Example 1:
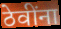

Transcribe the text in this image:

ठेवींना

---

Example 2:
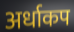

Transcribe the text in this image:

अर्धाकप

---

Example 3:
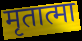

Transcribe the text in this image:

मृतात्मा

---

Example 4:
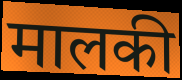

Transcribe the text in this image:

मालकी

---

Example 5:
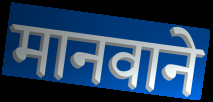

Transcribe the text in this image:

मानवाने